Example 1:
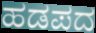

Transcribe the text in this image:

ಹಡಪದ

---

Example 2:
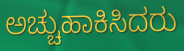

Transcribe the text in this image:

ಅಚ್ಚುಹಾಕಿಸಿದರು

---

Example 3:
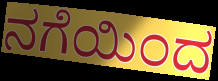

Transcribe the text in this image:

ನಗೆಯಿಂದ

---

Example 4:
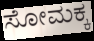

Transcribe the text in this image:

ಸೋಮಕ್ಕ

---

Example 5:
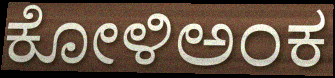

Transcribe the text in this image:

ಕೋಳಿಅಂಕ